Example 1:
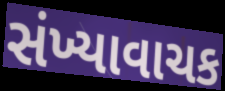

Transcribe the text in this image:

સંખ્યાવાચક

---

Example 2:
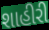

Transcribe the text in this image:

શાહીરી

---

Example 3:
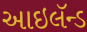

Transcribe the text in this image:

આઇલૅન્ડ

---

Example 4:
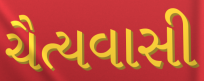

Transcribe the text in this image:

ચૈત્યવાસી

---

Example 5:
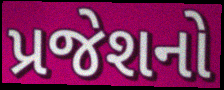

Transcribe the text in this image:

પ્રજેશનો